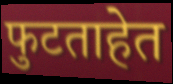
फुटताहेत